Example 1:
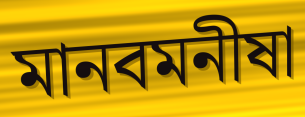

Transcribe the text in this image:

মানবমনীষা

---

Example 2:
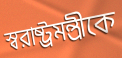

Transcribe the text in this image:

স্বরাষ্ট্রমন্ত্রীকে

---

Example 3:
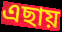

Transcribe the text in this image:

এছায়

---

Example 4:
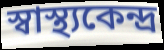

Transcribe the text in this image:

স্বাস্থ্যকেন্দ্র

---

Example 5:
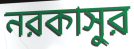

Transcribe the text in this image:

নরকাসুর